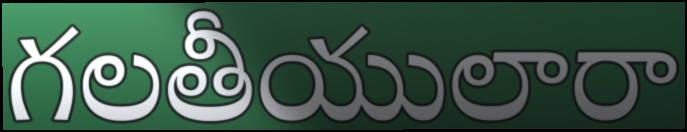
గలతీయులారా